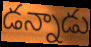
డన్నాడు